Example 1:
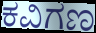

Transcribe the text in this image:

ಕವಿಗಣ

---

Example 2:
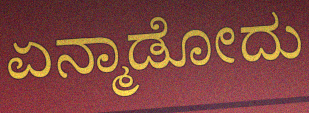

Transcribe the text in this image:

ಏನ್ಮಾಡೋದು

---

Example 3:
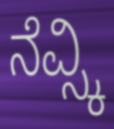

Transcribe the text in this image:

ನೆವ್ಸ್ಕಿ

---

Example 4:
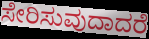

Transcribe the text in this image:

ಸೇರಿಸುವುದಾದರೆ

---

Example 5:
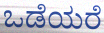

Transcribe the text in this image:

ಒಡೆಯರೆ